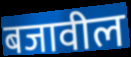
बजावील